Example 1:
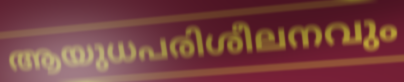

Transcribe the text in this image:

ആയുധപരിശീലനവും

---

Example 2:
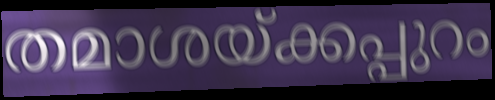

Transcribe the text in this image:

തമാശയ്ക്കപ്പുറം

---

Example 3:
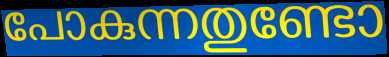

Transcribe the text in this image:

പോകുന്നതുണ്ടോ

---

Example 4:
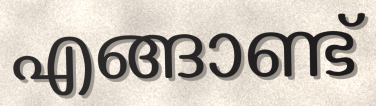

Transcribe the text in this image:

എങ്ങാണ്ട്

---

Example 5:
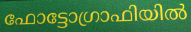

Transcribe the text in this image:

ഫോട്ടോഗ്രാഫിയിൽ